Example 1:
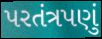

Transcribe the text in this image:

પરતંત્રપણું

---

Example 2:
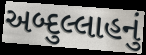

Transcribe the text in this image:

અબ્દુલ્લાહનું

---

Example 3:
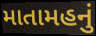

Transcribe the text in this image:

માતામહનું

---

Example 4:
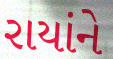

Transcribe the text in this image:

રાયાંને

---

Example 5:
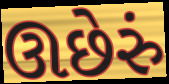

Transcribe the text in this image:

ઊછેરું